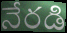
నేరడి